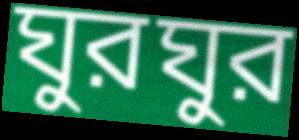
ঘুরঘুর